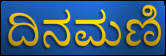
ದಿನಮಣಿ